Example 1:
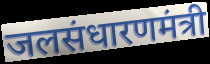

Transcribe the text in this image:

जलसंधारणमंत्री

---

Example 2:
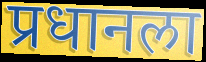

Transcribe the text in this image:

प्रधानला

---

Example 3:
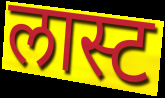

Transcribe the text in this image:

लास्ट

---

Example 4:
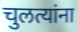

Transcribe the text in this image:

चुलत्यांना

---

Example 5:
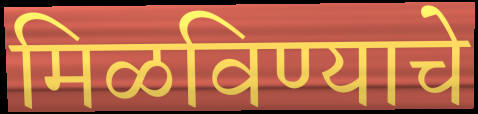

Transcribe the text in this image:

मिळविण्याचे